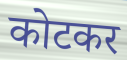
कोटकर